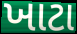
ખાટા